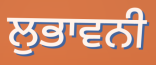
ਲੁਭਾਵਨੀ